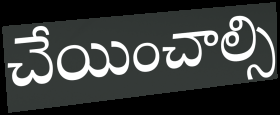
చేయించాల్సి